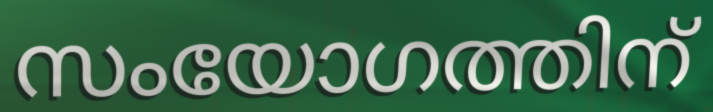
സംയോഗത്തിന്